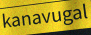
kanavugal